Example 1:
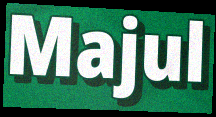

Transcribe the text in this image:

Majul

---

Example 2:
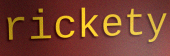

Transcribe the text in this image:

rickety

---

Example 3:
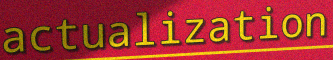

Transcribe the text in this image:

actualization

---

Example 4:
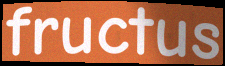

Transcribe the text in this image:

fructus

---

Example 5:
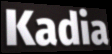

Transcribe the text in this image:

Kadia